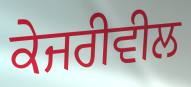
ਕੇਜਰੀਵੀਲ